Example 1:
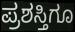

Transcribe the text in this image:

ಪ್ರಶಸ್ತಿಗೂ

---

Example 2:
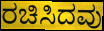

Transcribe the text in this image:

ರಚಿಸಿದವು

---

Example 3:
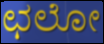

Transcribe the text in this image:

ಛಲೋ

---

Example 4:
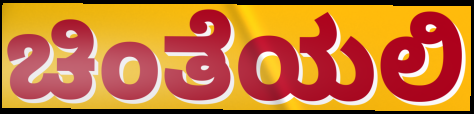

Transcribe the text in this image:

ಚಿಂತೆಯಲಿ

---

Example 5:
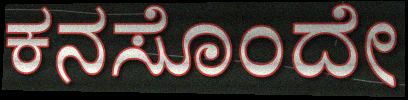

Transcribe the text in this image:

ಕನಸೊಂದೇ